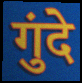
गुंदे